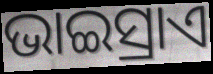
ଭାଇସ୍ରାଏ